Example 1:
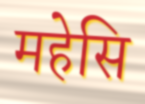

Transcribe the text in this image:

महेसि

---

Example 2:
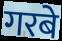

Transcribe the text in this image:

गरबे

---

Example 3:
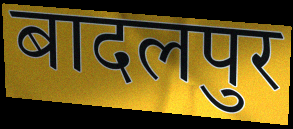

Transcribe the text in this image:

बादलपुर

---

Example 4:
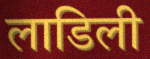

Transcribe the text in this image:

लाडिली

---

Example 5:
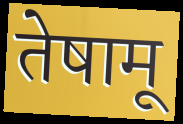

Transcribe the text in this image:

तेषामू